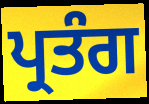
ਪ੍ਰਤੰਗ